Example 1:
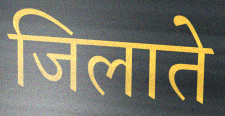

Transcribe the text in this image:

जिलाते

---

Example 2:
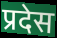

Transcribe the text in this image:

प्रदेस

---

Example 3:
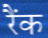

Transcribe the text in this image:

रैंक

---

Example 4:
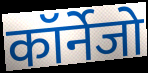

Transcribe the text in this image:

कॉर्नेजो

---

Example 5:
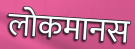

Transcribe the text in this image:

लोकमानस